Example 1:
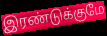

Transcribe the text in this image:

இரண்டுக்குமே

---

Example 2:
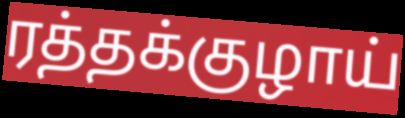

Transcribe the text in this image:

ரத்தக்குழாய்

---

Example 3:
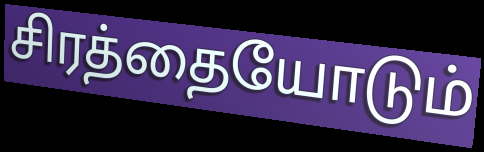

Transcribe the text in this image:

சிரத்தையோடும்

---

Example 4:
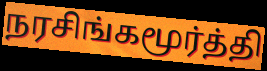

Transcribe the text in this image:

நரசிங்கமூர்த்தி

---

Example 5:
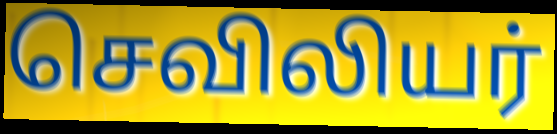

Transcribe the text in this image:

செவிலியர்